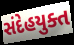
સંદેહયુક્ત